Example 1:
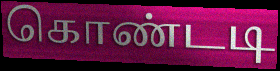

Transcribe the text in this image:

கொண்டடி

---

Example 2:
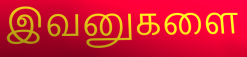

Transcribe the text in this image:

இவனுகளை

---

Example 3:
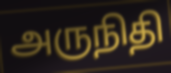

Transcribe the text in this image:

அருநிதி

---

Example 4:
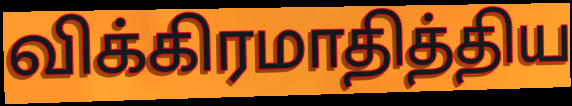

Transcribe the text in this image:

விக்கிரமாதித்திய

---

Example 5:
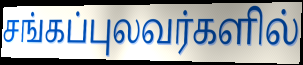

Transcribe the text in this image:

சங்கப்புலவர்களில்